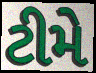
ટીમે